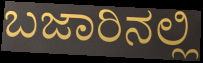
ಬಜಾರಿನಲ್ಲಿ